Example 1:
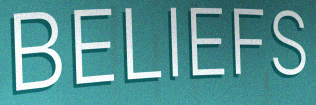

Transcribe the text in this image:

BELIEFS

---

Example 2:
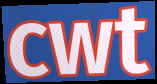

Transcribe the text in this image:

cwt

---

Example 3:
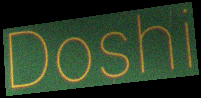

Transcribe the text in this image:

Doshi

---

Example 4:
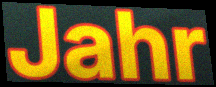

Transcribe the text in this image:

Jahr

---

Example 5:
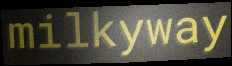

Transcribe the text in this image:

milkyway